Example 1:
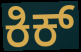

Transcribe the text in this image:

ಕಿಕ್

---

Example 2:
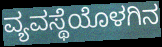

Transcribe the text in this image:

ವ್ಯವಸ್ಥೆಯೊಳಗಿನ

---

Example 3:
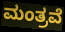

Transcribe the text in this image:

ಮಂತ್ರವೆ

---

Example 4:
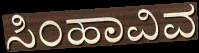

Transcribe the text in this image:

ಸಿಂಹಾವಿವ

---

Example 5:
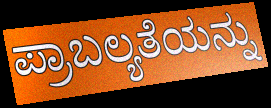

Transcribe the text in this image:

ಪ್ರಾಬಲ್ಯತೆಯನ್ನು